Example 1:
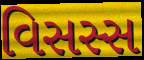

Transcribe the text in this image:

વિસસ્સ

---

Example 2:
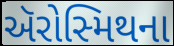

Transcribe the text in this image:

ઍરોસ્મિથના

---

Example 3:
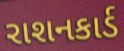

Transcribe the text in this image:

રાશનકાર્ડ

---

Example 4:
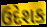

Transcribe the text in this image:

ઉદેશક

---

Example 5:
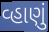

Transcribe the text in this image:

વ્હાણું